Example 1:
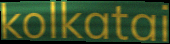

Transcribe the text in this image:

kolkatai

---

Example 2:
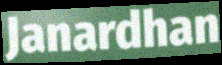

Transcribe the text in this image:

Janardhan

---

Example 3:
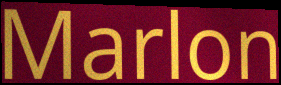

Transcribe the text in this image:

Marlon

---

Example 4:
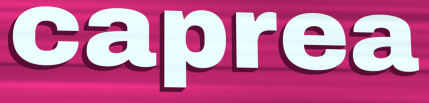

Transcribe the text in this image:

caprea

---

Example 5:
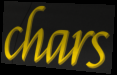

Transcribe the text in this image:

chars